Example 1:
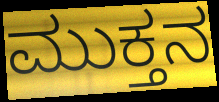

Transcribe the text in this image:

ಮುಕ್ತನ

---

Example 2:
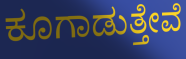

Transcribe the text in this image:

ಕೂಗಾಡುತ್ತೇವೆ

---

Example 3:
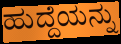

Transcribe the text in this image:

ಹುದ್ದೆಯನ್ನು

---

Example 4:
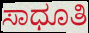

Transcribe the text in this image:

ಸಾಧೂತಿ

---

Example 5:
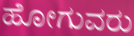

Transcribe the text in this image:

ಹೋಗುವರು